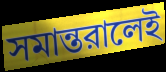
সমান্তরালেই